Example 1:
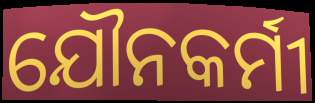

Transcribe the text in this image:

ଯୌନକର୍ମୀ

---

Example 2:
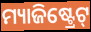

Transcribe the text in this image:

ମ୍ୟାଜିଷ୍ଟ୍ରେଟ୍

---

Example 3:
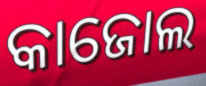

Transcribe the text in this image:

କାଜୋଲ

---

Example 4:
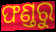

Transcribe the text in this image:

ଫଣ୍ଡରୁ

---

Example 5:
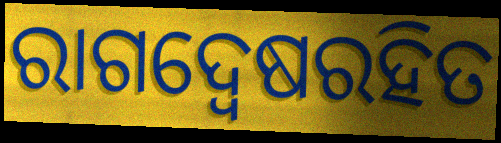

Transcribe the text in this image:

ରାଗଦ୍ୱେଷରହିତ